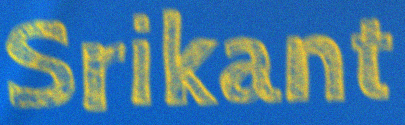
Srikant